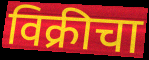
विक्रीचा